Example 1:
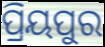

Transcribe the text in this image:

ପ୍ରିୟପୁର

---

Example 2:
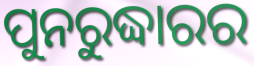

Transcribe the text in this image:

ପୁନରୁଦ୍ଧାରର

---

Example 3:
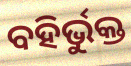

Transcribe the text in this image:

ବହିର୍ଭୁକ୍ତ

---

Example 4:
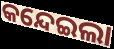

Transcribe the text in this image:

କନ୍ଦେଇଲା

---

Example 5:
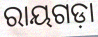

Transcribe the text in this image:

ରାୟଗଡ଼ା